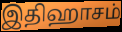
இதிஹாசம்